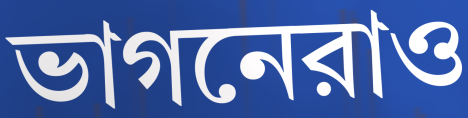
ভাগনেরাও